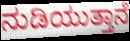
ನುಡಿಯುತ್ತಾನೆ